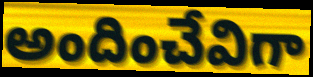
అందించేవిగా